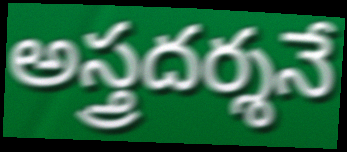
అస్త్రదర్శనే